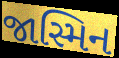
જાસ્મિન